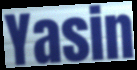
Yasin